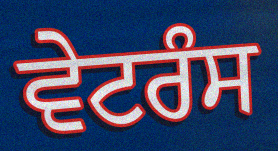
ਵੇਟਰੰਸ